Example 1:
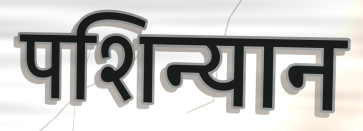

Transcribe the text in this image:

पशिन्यान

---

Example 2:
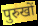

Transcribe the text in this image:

पुरुखों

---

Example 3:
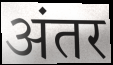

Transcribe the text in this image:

अंतर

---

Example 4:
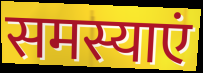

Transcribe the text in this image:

समस्याएं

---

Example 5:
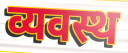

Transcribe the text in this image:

व्यवस्थ